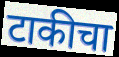
टाकीचा